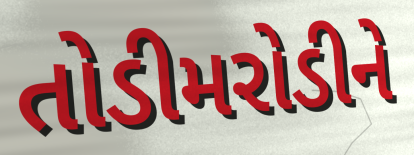
તોડીમરોડીને